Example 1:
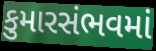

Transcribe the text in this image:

કુમારસંભવમાં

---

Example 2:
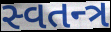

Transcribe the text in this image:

સ્વતન્ત્ર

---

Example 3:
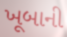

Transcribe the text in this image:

ખૂબાની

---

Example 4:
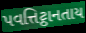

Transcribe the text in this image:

પવત્તિટ્ઠાનતાય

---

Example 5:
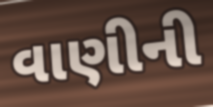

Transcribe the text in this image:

વાણીની